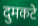
दुमकटे